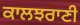
ਕਾਲਝਰਾਣੀ